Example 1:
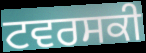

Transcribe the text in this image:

ਟਵਰਸਕੀ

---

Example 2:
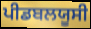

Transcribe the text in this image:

ਪੀਡਬਲਯੂਸੀ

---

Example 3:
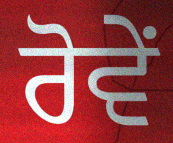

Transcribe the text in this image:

ਰੋਵੇਂ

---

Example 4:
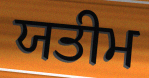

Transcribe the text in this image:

ਯਤੀਮ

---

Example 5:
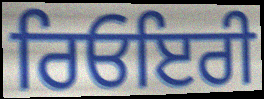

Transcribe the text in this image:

ਰਿਓਇਰੀ